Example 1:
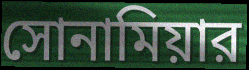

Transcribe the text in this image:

সোনামিয়ার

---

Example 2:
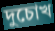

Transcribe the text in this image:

দুচোখ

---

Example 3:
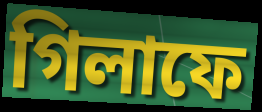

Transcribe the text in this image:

গিলাফে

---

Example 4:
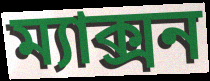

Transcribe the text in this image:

ম্যাক্সন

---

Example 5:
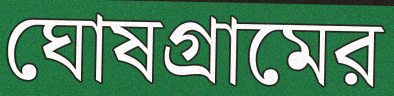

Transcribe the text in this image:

ঘোষগ্রামের